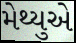
મેથ્યુએ